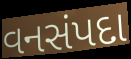
વનસંપદા